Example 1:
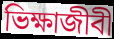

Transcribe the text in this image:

ভিক্ষাজীবী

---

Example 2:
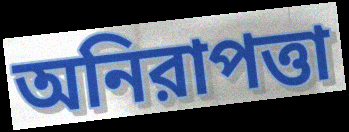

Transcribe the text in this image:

অনিরাপত্তা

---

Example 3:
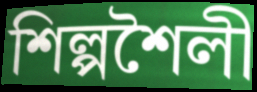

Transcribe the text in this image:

শিল্পশৈলী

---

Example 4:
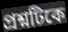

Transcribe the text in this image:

প্রশ্নটিকে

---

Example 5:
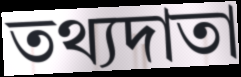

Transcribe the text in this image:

তথ্যদাতা